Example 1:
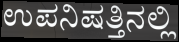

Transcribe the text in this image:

ಉಪನಿಷತ್ತಿನಲ್ಲಿ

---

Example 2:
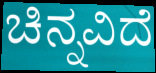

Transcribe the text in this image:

ಚಿನ್ನವಿದೆ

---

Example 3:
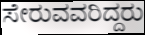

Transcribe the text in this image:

ಸೇರುವವರಿದ್ದರು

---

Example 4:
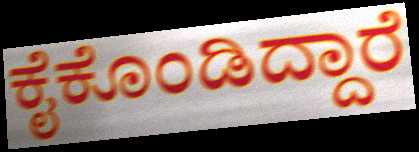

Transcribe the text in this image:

ಕೈಕೊಂಡಿದ್ದಾರೆ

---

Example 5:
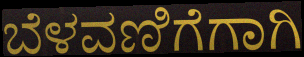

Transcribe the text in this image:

ಬೆಳವಣಿಗೆಗಾಗಿ